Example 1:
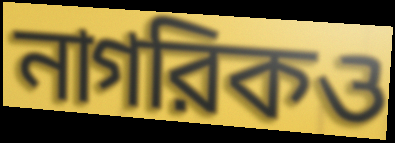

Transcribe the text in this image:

নাগরিকও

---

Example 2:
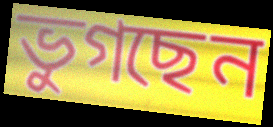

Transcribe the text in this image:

ভুগছেন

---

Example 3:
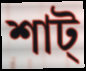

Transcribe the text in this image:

শাট্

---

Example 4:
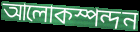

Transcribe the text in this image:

আলোকস্পন্দন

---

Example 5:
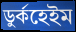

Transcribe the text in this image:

ডুর্কহেইম